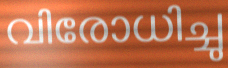
വിരോധിച്ചു